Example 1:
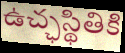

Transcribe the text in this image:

ఉచ్ఛస్థితికి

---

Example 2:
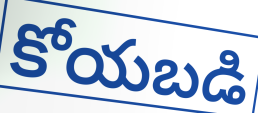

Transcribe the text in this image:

కోయబడి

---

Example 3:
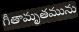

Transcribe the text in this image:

గీతామృతమును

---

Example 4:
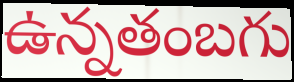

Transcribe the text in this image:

ఉన్నతంబగు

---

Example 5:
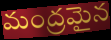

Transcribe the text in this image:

మంద్రమైన